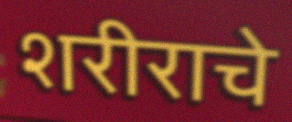
शरीराचे